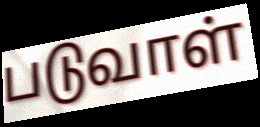
படுவாள்